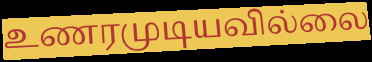
உணரமுடியவில்லை